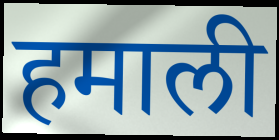
हमाली